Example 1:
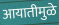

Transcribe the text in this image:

आयातीमुळे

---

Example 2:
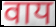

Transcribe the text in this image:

वाय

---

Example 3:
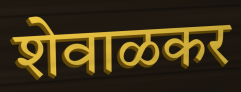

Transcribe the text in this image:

शेवाळकर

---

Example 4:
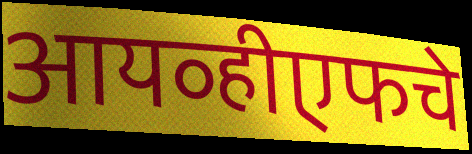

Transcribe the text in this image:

आयव्हीएफचे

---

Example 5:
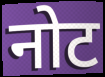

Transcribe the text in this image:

नोट